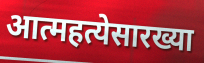
आत्महत्येसारख्या